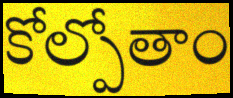
కోల్పోతాం